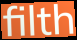
filth